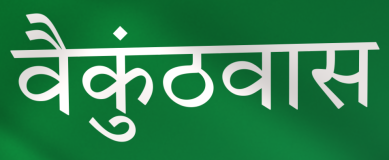
वैकुंठवास